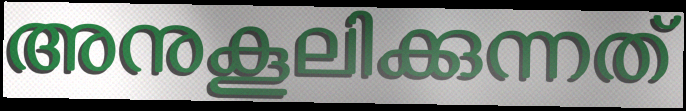
അനുകൂലിക്കുന്നത്